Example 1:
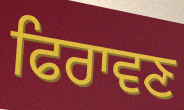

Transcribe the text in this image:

ਫਿਰਾਵਣ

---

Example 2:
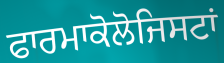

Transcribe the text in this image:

ਫਾਰਮਾਕੋਲੋਜਿਸਟਾਂ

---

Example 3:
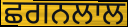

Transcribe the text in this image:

ਛਗਨਲਾਲ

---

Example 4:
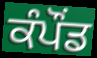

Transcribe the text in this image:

ਕੰਪੌਂਡ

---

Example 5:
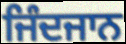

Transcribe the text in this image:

ਜਿੰਦਜਾਨ